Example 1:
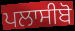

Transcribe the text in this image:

ਪਲਾਸੀਬੋ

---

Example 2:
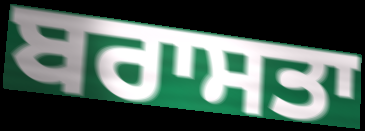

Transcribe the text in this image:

ਬਰਾਸਤਾ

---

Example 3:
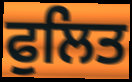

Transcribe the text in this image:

ਫੁਲਿਤ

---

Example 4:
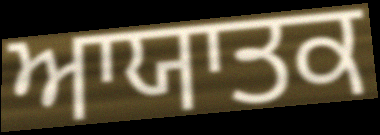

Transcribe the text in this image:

ਆਯਾਤਕ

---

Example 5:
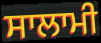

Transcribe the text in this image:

ਸਾਲਾਮੀ